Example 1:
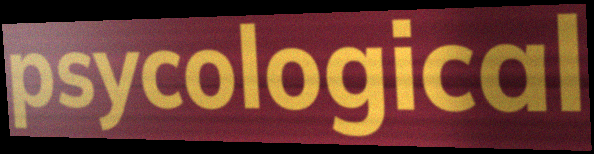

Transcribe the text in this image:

psycological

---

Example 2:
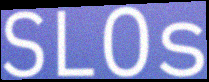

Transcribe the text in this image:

SLOs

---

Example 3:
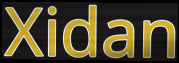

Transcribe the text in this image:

Xidan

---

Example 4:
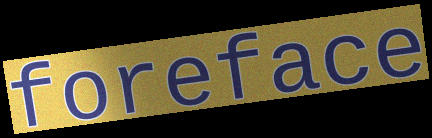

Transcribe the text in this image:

foreface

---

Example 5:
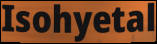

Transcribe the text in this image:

Isohyetal